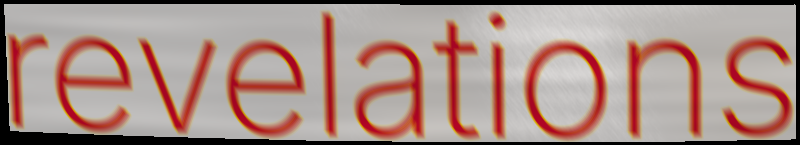
revelations